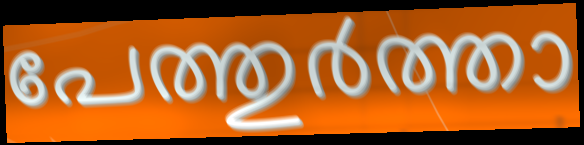
പേത്തുർത്താ